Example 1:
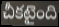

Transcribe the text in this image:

చీకటైంది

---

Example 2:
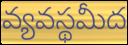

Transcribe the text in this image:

వ్యవస్థమీద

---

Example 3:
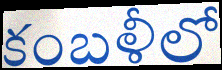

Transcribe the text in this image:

కంబళీలో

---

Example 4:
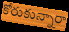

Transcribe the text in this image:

కోరుకున్నారా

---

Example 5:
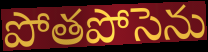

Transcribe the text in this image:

పోతపోసెను